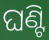
ଘଣ୍ଟି